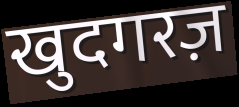
खुदगरज़